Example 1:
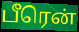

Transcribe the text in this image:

பீரென்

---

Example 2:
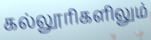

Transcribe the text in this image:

கல்லூரிகளிலும்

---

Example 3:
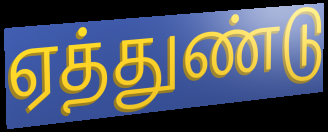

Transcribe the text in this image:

ஏத்துண்டு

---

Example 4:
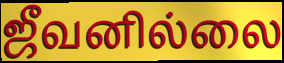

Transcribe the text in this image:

ஜீவனில்லை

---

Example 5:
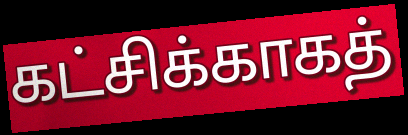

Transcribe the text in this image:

கட்சிக்காகத்